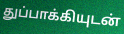
துப்பாக்கியுடன்